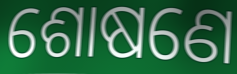
ଶୋଷଣେ